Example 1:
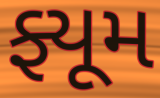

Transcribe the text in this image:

ફ્યૂમ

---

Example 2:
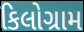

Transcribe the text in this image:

કિલોગ્રામ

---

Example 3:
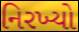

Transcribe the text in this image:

નિરખ્યો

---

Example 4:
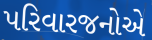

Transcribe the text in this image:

પરિવારજનોએ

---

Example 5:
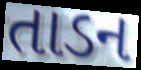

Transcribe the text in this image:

તાડન